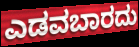
ಎಡವಬಾರದು